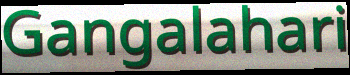
Gangalahari